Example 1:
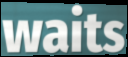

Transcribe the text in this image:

waits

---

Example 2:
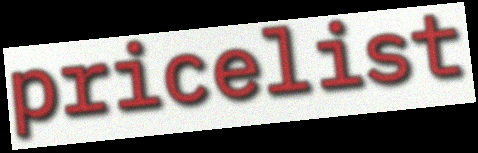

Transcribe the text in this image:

pricelist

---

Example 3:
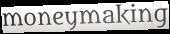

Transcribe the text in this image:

moneymaking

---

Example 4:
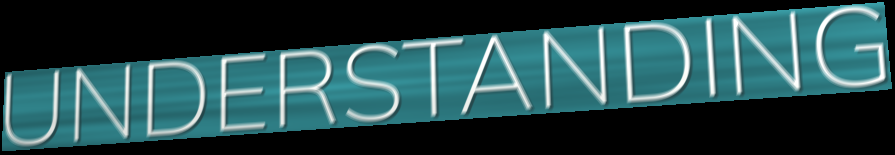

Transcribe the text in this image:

UNDERSTANDING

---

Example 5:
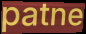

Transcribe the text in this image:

patne